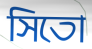
সিতো